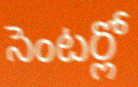
సెంటర్లో